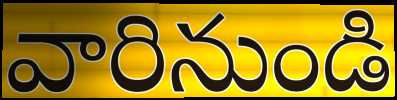
వారినుండి